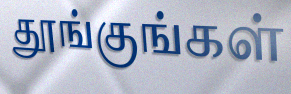
தூங்குங்கள்